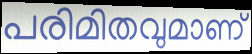
പരിമിതവുമാണ്